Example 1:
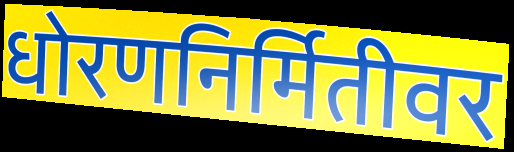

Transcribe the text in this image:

धोरणनिर्मितीवर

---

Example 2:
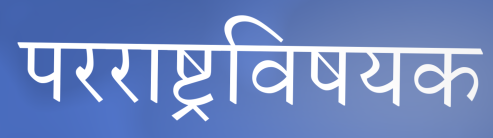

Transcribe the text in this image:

परराष्ट्रविषयक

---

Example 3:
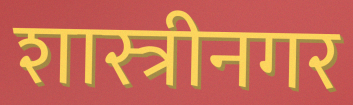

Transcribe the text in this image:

शास्त्रीनगर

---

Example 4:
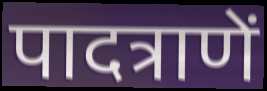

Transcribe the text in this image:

पादत्राणें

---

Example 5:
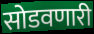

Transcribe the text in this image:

सोडवणारी